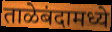
ताळेबंदामध्ये